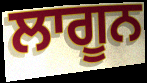
ਲਾਗੂਨ